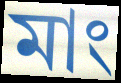
মাং